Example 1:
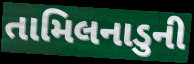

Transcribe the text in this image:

તામિલનાડુની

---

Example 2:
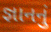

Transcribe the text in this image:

જ્ઞાનનું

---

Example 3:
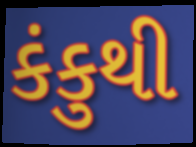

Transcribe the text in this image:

કંકુથી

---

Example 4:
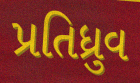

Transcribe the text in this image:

પ્રતિધ્રુવ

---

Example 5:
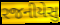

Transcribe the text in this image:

રજનીયેસુ